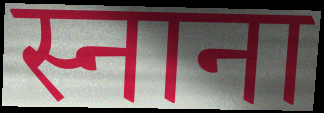
स्नाना